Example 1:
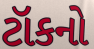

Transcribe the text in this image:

ટૉકનો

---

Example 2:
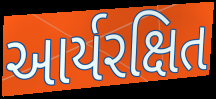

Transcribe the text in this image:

આર્યરક્ષિત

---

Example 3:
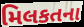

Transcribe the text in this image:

મિલકતના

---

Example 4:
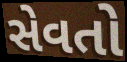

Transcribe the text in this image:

સેવતો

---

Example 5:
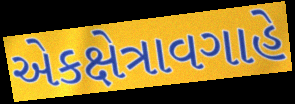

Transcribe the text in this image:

એકક્ષેત્રાવગાહે